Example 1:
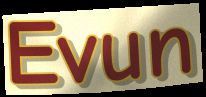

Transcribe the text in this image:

Evun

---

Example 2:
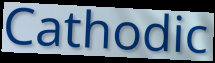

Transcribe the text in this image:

Cathodic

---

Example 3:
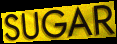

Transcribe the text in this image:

SUGAR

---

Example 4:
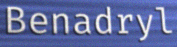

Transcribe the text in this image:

Benadryl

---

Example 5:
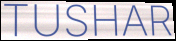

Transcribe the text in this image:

TUSHAR